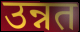
उन्नत